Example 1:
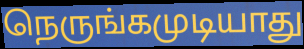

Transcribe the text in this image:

நெருங்கமுடியாது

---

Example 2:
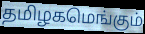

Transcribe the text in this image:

தமிழகமெங்கும்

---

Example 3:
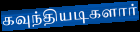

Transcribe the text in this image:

கவுந்தியடிகளார்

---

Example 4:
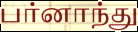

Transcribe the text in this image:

பர்னாந்து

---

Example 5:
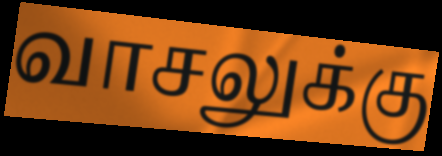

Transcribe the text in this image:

வாசலுக்கு